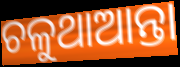
ଚଳୁଥାଆନ୍ତା